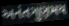
અનંતગુણમય